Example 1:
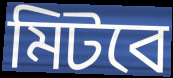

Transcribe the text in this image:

মিটবে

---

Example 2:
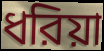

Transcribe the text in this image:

ধরিয়া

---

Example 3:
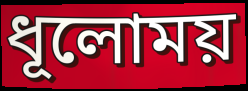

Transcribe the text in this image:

ধূলোময়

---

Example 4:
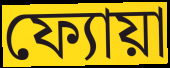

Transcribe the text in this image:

ফ্যোয়া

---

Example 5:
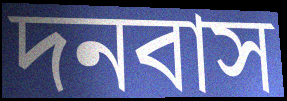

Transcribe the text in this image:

দনবাস